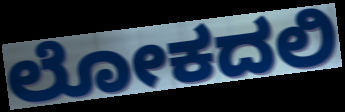
ಲೋಕದಲಿ